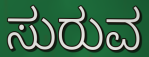
ಸುರುವ